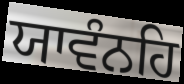
ਯਾਵੰਨਹਿ